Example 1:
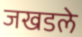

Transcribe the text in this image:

जखडले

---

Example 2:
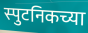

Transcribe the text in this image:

स्पुटनिकच्या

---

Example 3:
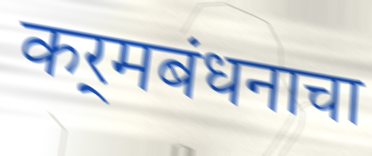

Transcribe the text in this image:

कर्मबंधनाचा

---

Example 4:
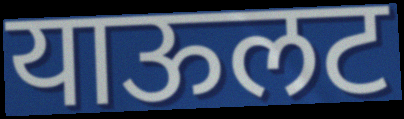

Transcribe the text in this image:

याऊलट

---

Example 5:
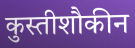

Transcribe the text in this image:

कुस्तीशौकीन